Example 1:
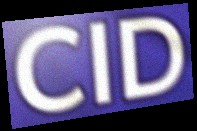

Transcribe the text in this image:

CID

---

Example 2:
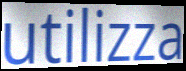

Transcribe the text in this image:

utilizza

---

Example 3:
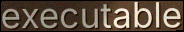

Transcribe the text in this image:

executable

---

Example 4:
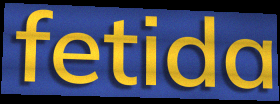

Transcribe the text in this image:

fetida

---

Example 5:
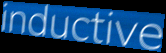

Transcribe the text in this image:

inductive